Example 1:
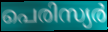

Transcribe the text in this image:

പെരിസ്യർ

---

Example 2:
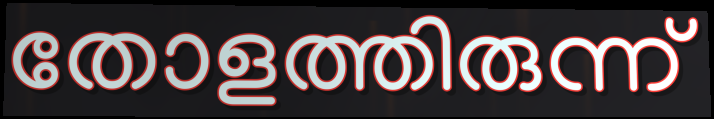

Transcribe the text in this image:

തോളത്തിരുന്ന്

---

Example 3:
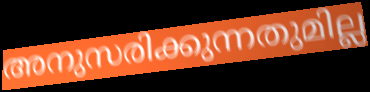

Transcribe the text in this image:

അനുസരിക്കുന്നതുമില്ല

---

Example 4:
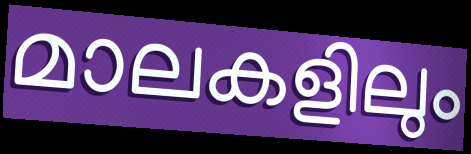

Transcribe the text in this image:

മാലകളിലും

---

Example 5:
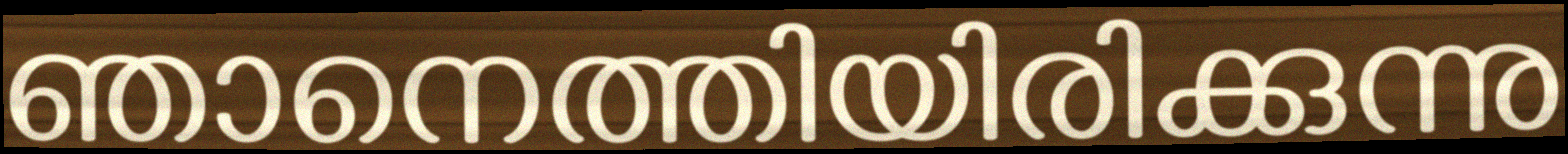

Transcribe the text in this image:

ഞാനെത്തിയിരിക്കുന്നു